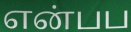
என்பப